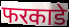
फरकाडे